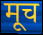
मूच